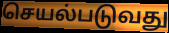
செயல்படுவது